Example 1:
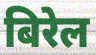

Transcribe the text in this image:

बिरेल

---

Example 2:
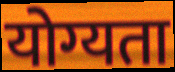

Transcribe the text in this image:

योग्‍यता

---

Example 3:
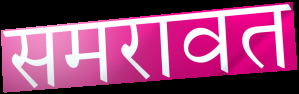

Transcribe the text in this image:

समरावत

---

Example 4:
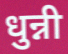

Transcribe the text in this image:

धुन्नी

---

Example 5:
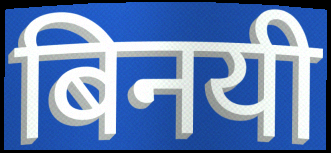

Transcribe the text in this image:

बिनयी